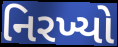
નિરખ્યો